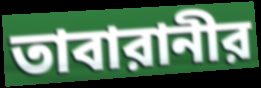
তাবারানীর